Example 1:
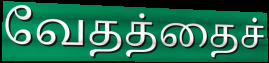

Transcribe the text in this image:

வேதத்தைச்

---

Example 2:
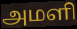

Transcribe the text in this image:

அமளி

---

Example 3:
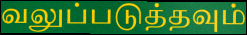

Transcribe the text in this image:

வலுப்படுத்தவும்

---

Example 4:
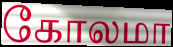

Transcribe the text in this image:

கோலமா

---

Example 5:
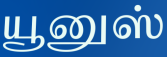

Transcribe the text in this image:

யூனுஸ்